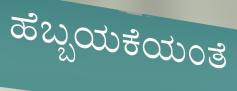
ಹೆಬ್ಬಯಕೆಯಂತೆ